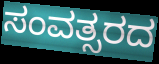
ಸಂವತ್ಸರದ